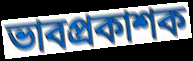
ভাবপ্রকাশক